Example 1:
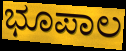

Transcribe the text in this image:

ಭೂಪಾಲ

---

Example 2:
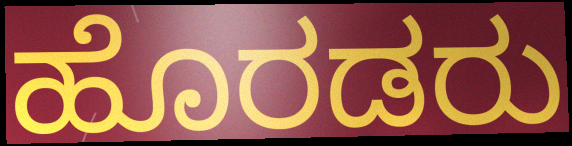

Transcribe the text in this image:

ಹೊರಡರು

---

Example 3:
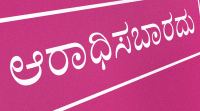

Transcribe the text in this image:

ಆರಾಧಿಸಬಾರದು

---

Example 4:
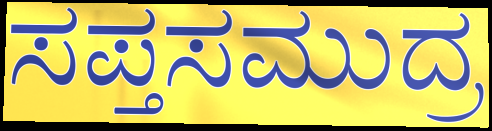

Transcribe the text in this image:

ಸಪ್ತಸಮುದ್ರ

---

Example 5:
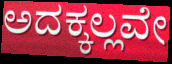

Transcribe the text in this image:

ಅದಕ್ಕಲ್ಲವೇ